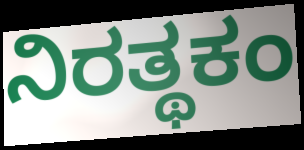
ನಿರತ್ಥಕಂ